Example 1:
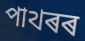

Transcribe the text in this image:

পাথৰৰ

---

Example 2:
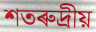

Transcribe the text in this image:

শতৰুদ্ৰীয়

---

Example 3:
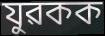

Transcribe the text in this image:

যুৱকক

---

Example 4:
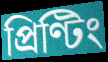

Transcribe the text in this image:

প্ৰিণ্টিং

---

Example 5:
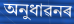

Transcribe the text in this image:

অনুধাৱনৰ